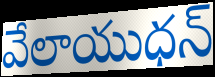
వేలాయుధన్